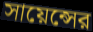
সায়েন্সের